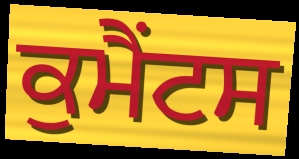
ਕੁਮੈਂਟਸ